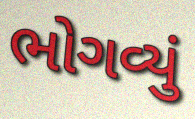
ભોગવ્યું